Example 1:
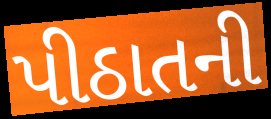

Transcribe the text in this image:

પીઠાતની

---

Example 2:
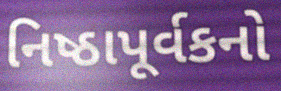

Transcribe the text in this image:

નિષ્ઠાપૂર્વકનો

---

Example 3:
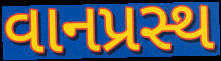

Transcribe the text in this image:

વાનપ્રસ્થ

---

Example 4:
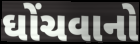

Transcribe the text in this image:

ઘોંચવાનો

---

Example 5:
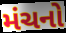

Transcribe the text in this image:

મંચનો